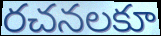
రచనలకూ